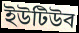
ইউটিউব